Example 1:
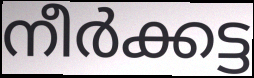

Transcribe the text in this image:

നീർക്കട്ട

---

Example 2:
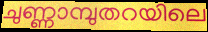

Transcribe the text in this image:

ചുണ്ണാമ്പുതറയിലെ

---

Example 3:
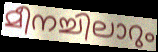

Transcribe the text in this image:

മീനച്ചിലാറും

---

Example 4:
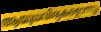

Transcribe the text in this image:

ആയുധവിദ്യകളൊന്നും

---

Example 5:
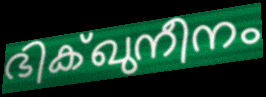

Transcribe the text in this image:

ഭിക്ഖുനീനം